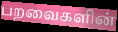
பறவைகளின்